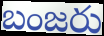
బంజరు